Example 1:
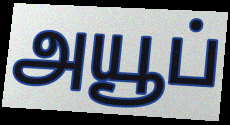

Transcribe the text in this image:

அயூப்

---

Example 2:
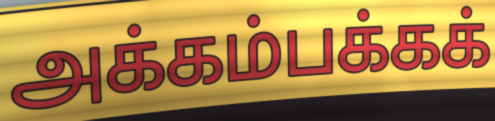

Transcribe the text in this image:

அக்கம்பக்கக்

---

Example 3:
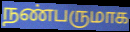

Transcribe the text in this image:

நண்பருமாக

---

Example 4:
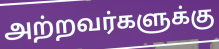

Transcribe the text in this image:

அற்றவர்களுக்கு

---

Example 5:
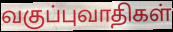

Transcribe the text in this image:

வகுப்புவாதிகள்